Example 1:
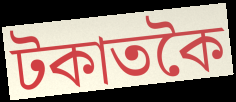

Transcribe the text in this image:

টকাতকৈ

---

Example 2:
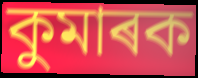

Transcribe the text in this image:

কুমাৰক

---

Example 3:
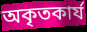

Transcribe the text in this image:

অকৃতকাৰ্য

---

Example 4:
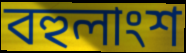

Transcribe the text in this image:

বহুলাংশ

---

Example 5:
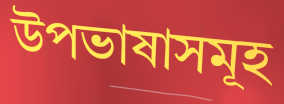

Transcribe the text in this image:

উপভাষাসমূহ